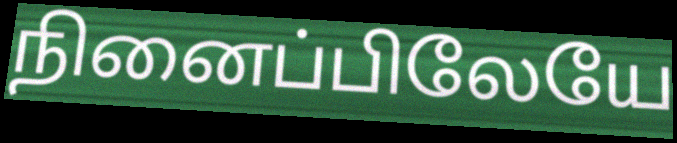
நினைப்பிலேயே